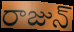
రాజున్